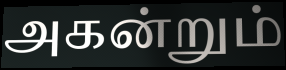
அகன்றும்